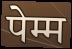
पेम्म